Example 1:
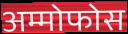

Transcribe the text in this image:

अम्मोफोस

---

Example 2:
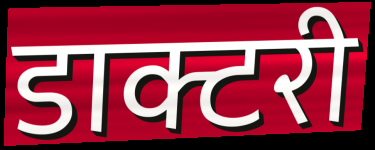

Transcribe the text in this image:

डाक्टरी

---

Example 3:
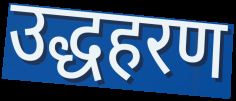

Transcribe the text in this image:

उद्धहरण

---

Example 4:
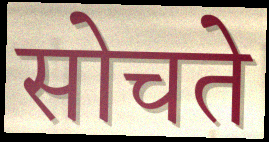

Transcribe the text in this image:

सोचते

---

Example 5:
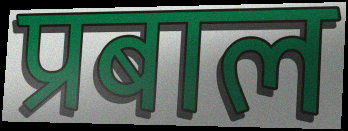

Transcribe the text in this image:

प्रबाल